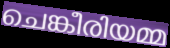
ചെങ്കീരിയമ്മ